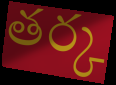
తర్క